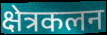
क्षेत्रकलन